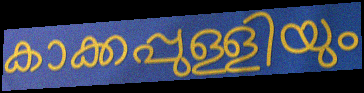
കാക്കപ്പുള്ളിയും